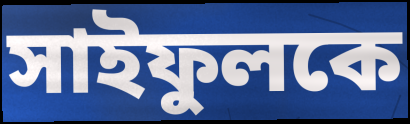
সাইফুলকে